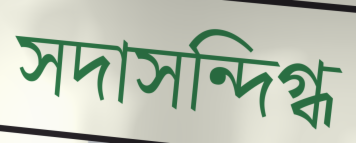
সদাসন্দিগ্ধ